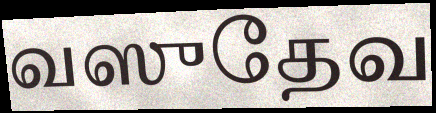
வஸுதேவ